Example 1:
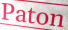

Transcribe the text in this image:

Paton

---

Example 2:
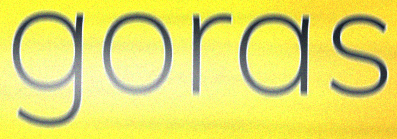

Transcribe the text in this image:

goras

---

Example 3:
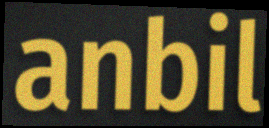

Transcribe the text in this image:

anbil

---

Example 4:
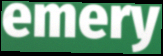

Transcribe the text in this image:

emery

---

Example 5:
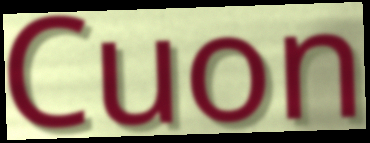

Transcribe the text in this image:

Cuon